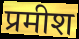
प्रमीश